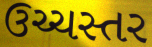
ઉચ્ચસ્તર